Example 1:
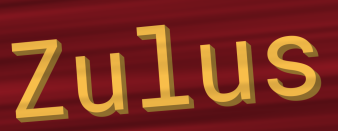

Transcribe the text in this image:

Zulus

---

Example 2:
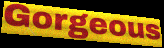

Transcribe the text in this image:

Gorgeous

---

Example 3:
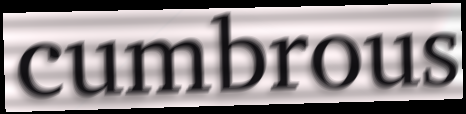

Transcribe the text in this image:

cumbrous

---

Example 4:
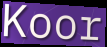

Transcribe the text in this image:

Koor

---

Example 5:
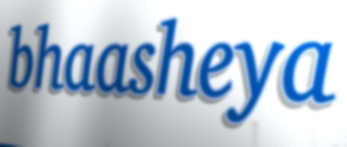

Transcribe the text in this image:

bhaasheya